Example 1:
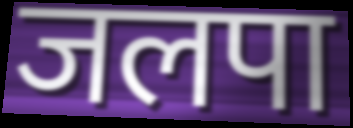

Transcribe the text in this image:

जलपा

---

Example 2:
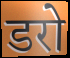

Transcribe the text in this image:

डरो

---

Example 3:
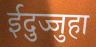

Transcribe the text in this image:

ईदुज्जुहा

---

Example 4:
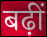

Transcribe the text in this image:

बढ़ीं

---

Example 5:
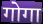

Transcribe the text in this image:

गोगा